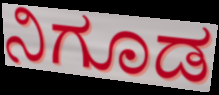
ನಿಗೂಡ